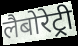
लैबोरेट्री